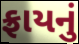
ફ્રાયનું